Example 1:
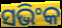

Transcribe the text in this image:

ସଭିଂକ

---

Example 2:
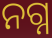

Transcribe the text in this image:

ନଗ୍ନ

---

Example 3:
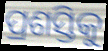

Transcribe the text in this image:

ପ୍ରଶସ୍ତିକୁ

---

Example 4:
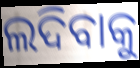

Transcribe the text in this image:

ଲଦିବାକୁ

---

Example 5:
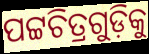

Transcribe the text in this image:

ପଟ୍ଟଚିତ୍ରଗୁଡ଼ିକୁ